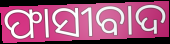
ଫାସୀବାଦ